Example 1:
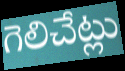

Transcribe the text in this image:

గెలిచేట్లు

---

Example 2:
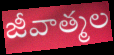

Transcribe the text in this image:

జీవాత్మల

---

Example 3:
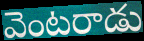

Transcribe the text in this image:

వెంటరాడు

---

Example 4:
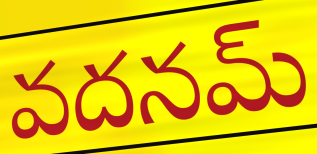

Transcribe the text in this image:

వదనమ్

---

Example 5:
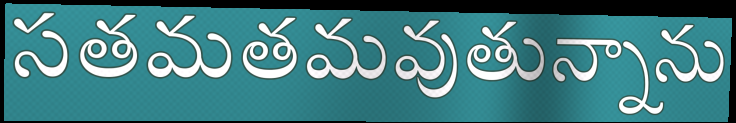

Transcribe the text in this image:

సతమతమవుతున్నాను